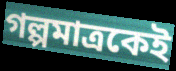
গল্পমাত্রকেই